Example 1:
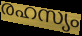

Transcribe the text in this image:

രഹസ്യം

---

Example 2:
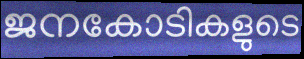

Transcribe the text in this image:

ജനകോടികളുടെ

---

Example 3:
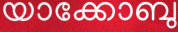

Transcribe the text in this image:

യാക്കോബു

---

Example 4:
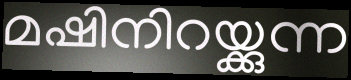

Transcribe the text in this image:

മഷിനിറയ്ക്കുന്ന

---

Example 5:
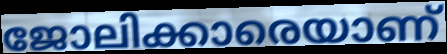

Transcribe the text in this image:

ജോലിക്കാരെയാണ്